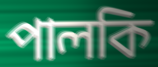
পালকি